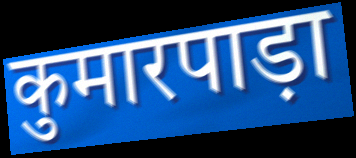
कुमारपाड़ा